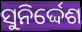
ସୁନିର୍ଦ୍ଦେଶ